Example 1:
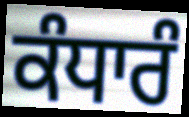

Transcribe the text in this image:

ਕੰਧਾਰੰ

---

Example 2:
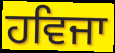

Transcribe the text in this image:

ਹਵਿਜਾ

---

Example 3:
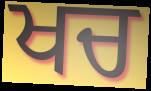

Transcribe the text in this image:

ਖਚ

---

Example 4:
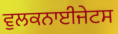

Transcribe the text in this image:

ਵੁਲਕਨਾਈਜੇਟਸ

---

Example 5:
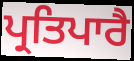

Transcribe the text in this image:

ਪ੍ਰਤਿਪਾਰੈ